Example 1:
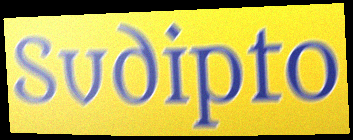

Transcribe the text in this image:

Sudipto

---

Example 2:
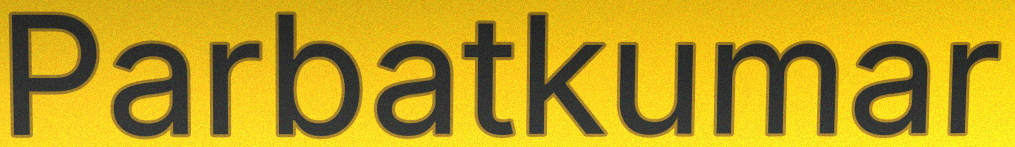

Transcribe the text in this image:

Parbatkumar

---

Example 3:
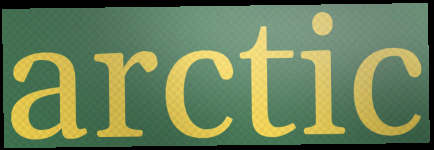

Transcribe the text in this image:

arctic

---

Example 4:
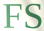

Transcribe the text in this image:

FS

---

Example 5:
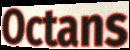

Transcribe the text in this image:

Octans